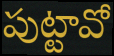
పుట్టావో